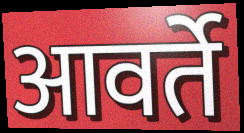
आवर्ते